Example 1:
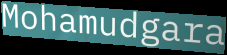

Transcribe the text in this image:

Mohamudgara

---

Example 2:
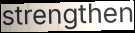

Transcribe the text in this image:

strengthen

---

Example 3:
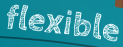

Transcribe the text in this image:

flexible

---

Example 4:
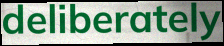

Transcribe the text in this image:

deliberately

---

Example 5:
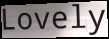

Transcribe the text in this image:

Lovely